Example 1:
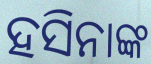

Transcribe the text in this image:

ହସିନାଙ୍କ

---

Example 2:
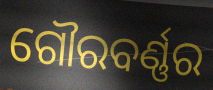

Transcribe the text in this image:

ଗୌରବର୍ଣ୍ଣର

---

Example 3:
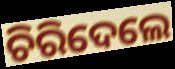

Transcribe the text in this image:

ଚିରିଦେଲେ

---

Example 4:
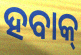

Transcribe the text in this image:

ହବାକ୍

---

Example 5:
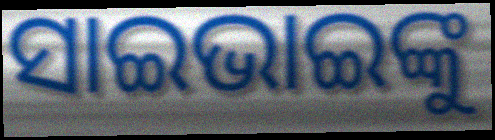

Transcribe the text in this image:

ସାଇଭାଇଙ୍କୁ